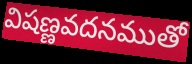
విషణ్ణవదనముతో